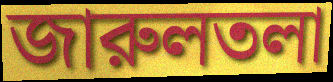
জারুলতলা